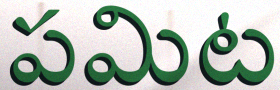
పమిట